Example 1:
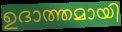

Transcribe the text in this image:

ഉദാത്തമായി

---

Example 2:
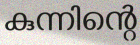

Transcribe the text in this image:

കുന്നിന്റെ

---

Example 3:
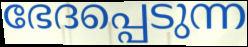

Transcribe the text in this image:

ഭേദപ്പെടുന്ന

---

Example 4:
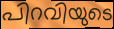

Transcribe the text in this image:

പിറവിയുടെ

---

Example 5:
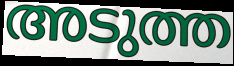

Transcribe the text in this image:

അടുത്ത